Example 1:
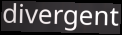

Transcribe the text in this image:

divergent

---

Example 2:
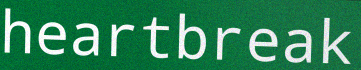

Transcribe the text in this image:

heartbreak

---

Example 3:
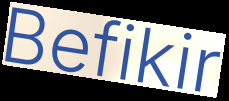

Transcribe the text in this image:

Befikir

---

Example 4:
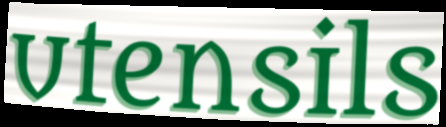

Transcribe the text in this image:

utensils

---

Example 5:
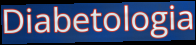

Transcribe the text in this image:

Diabetologia